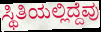
ಸ್ಥಿತಿಯಲ್ಲಿದ್ದೆವು